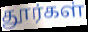
தூர்கள்